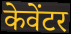
केवेंटर